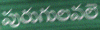
పురుగులవలె